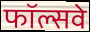
फॉल्सवे